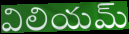
విలియమ్